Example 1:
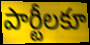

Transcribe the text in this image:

పార్టీలకూ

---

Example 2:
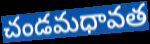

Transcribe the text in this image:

చండమధావత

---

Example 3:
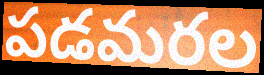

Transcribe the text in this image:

పడమరల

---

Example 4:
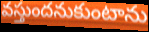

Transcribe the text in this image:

వస్తుందనుకుంటాను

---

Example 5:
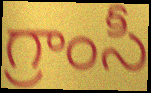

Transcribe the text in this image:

గ్రాంసీ